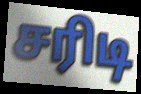
சரிடி